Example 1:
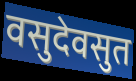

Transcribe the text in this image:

वसुदेवसुत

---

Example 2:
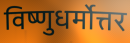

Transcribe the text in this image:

विष्णुधर्मोत्तर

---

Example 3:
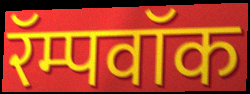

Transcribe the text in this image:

रॅम्पवॉक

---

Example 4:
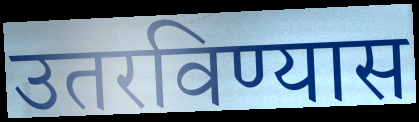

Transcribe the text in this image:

उतरविण्यास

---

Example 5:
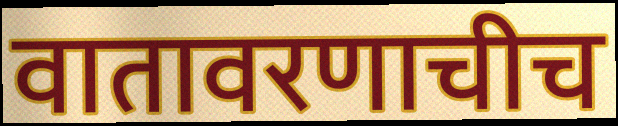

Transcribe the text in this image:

वातावरणाचीच